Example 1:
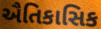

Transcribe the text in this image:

ઐતિકાસિક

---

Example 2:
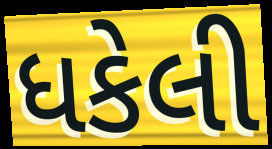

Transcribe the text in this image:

ધકેલી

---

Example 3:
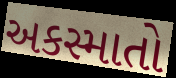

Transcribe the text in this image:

અકસ્માતો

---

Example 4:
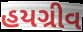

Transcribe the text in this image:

હયગ્રીવ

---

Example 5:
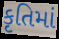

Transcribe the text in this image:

કૃતિમાં